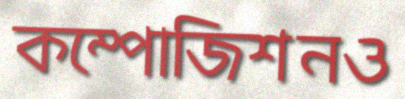
কম্পোজিশনও